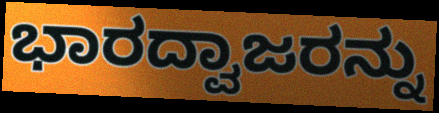
ಭಾರದ್ವಾಜರನ್ನು